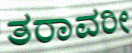
ತರಾವರೀ